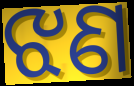
ଝଣ